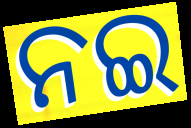
ନଇ